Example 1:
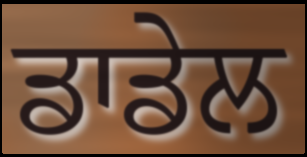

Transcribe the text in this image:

ਡਾਡੇਲ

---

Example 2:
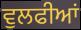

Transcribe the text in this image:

ਵੁਲਫੀਆਂ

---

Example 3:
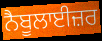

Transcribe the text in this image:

ਨੈਬੂਲਾਈਜ਼ਰ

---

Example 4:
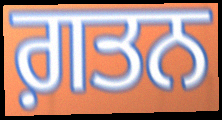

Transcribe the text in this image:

ਗ਼ਤਨ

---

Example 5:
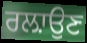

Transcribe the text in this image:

ਰਲ਼ਾਉਣ